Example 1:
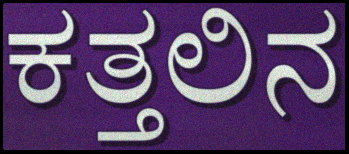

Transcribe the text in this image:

ಕತ್ತಲಿನ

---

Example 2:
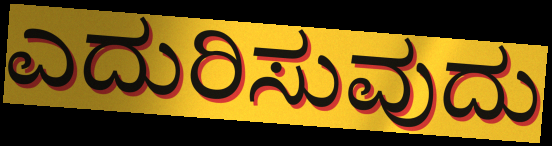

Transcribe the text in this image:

ಎದುರಿಸುವುದು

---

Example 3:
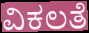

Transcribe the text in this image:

ವಿಕಲತೆ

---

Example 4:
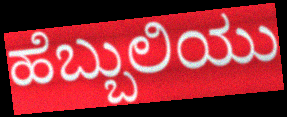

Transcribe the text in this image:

ಹೆಬ್ಬುಲಿಯು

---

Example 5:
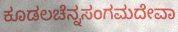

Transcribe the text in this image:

ಕೂಡಲಚೆನ್ನಸಂಗಮದೇವಾ